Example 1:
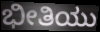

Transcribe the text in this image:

ಭೀತಿಯು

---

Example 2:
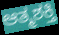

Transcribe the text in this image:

ಆತ್ಮಶಕ್ತಿ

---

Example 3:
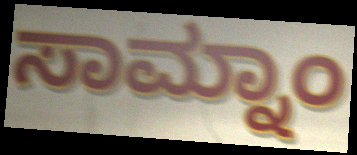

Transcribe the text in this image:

ಸಾಮ್ನಾಂ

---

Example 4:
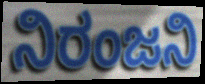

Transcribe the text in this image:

ನಿರಂಜನಿ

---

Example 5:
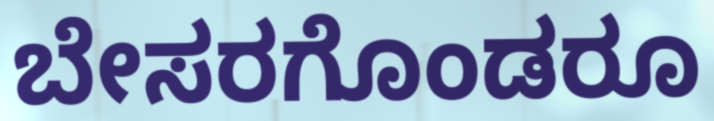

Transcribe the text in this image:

ಬೇಸರಗೊಂಡರೂ